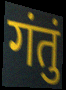
गंतुं